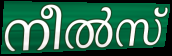
നീൽസ്